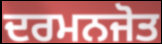
ਦਰਮਨਜੋਤ